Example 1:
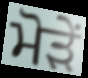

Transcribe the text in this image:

ਮੋੜੇਂ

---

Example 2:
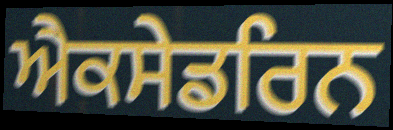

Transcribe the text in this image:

ਐਕਸੇਡਰਿਨ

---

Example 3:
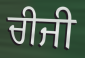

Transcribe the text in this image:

ਚੀਜੀ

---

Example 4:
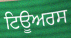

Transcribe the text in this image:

ਟਿਊਅਰਸ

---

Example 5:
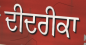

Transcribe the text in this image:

ਦੀਦਰੀਕਾ